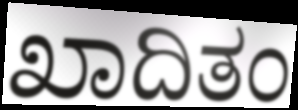
ಖಾದಿತಂ